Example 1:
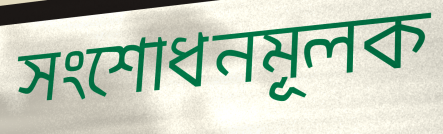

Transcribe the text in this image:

সংশোধনমূলক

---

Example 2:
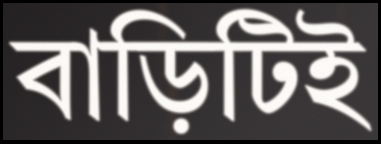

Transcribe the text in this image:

বাড়িটিই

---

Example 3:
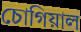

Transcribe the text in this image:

চোগিয়াল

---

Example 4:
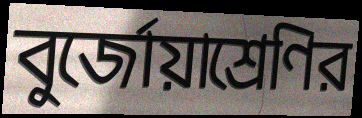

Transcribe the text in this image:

বুর্জোয়াশ্রেণির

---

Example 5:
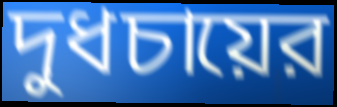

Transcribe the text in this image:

দুধচায়ের